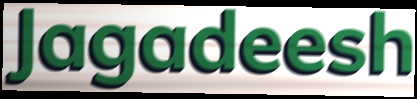
Jagadeesh